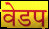
वेडप